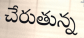
చేరుతున్న